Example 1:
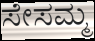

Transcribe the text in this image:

ಸೇಸಮ್ಮ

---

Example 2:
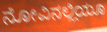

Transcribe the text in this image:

ನೋವಿನಲ್ಲಿಯೂ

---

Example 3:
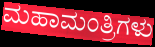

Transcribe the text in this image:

ಮಹಾಮಂತ್ರಿಗಳು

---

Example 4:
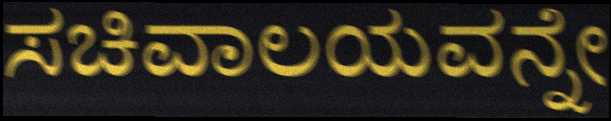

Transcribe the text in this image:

ಸಚಿವಾಲಯವನ್ನೇ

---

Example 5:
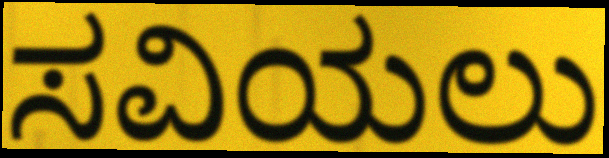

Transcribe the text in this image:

ಸವಿಯಲು